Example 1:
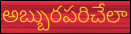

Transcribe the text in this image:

అబ్బురపరిచేలా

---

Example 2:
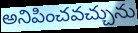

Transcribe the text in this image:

అనిపించవచ్చును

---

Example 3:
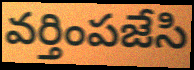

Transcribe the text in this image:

వర్తింపజేసి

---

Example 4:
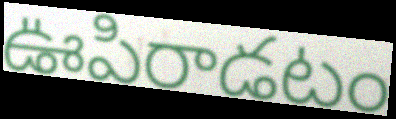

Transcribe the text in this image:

ఊపిరాడటం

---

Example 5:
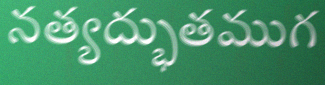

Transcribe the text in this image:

నత్యద్భుతముగ